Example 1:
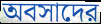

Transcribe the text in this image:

অবসাদের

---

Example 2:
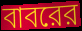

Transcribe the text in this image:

বাবরের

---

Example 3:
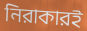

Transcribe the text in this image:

নিরাকারই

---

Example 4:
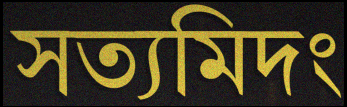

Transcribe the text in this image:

সত্যমিদং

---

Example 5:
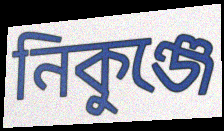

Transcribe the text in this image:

নিকুঞ্জে